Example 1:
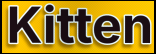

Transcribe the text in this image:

Kitten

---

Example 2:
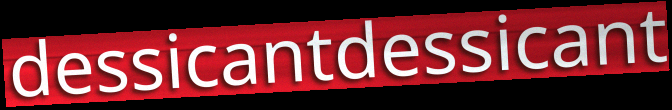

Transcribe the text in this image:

dessicantdessicant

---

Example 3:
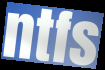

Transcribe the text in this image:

ntfs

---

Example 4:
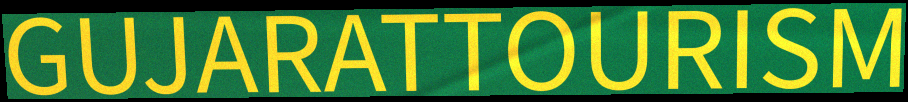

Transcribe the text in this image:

GUJARATTOURISM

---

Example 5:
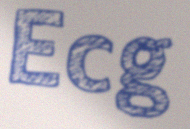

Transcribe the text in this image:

Ecg